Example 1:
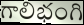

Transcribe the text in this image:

గాలిభంగి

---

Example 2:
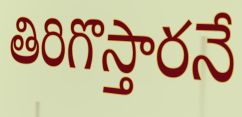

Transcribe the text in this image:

తిరిగొస్తారనే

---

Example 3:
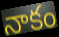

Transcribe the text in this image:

నాకం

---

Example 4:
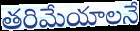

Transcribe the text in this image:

తరిమేయాలనే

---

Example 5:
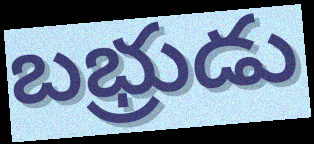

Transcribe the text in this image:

బభ్రుడు